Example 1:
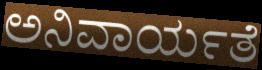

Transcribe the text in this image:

ಅನಿವಾರ್ಯತೆ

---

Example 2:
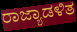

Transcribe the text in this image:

ರಾಜ್ಯಾಡಳಿತ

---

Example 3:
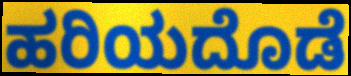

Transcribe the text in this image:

ಹರಿಯದೊಡೆ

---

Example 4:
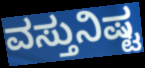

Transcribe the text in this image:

ವಸ್ತುನಿಷ್ಟ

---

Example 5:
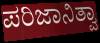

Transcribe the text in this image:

ಪರಿಜಾನಿತ್ವಾ